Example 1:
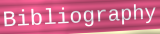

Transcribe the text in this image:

Bibliography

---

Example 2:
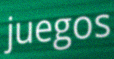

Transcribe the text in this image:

juegos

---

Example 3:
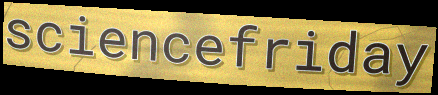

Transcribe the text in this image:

sciencefriday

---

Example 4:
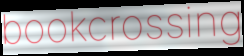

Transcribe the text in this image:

bookcrossing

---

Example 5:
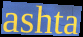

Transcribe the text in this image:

ashta